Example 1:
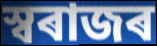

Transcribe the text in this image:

স্বৰাজৰ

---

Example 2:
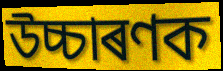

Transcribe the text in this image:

উচ্চাৰণক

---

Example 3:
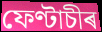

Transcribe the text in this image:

ফেণ্টাচীৰ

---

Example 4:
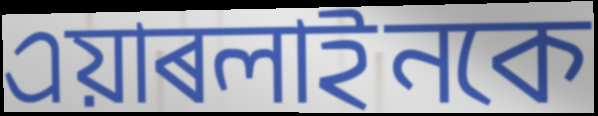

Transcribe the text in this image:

এয়াৰলাইনকে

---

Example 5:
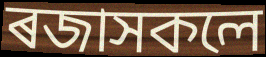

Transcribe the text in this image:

ৰজাসকলে